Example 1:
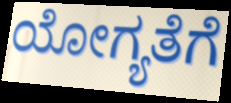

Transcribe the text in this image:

ಯೋಗ್ಯತೆಗೆ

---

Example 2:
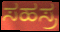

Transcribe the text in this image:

ಸಹಸ್ರ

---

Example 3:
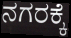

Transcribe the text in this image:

ನಗರಕ್ಕೆ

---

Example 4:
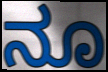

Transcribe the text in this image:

ನೂ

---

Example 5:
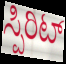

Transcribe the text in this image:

ಸ್ಪಿರಿಟ್